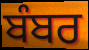
ਬੰਬਰ